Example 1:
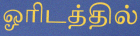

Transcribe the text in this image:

ஓரிடத்தில்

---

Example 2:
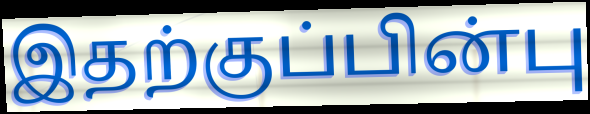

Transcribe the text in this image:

இதற்குப்பின்பு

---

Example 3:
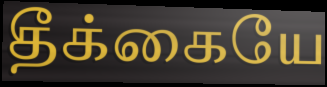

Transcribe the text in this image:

தீக்கையே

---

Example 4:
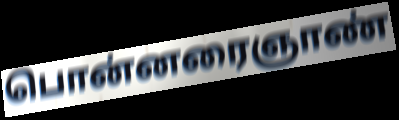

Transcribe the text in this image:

பொன்னரைஞாண்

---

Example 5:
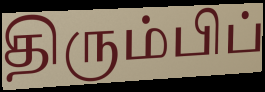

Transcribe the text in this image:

திரும்பிப்